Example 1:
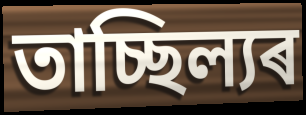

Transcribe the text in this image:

তাচ্ছিল্যৰ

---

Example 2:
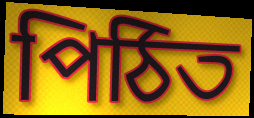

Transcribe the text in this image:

পিঠিত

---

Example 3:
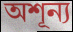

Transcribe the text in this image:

অশূন্য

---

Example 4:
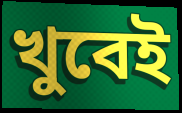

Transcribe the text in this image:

খুবেই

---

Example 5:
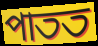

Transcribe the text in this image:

পাতত